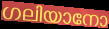
ഗലിയാനോ